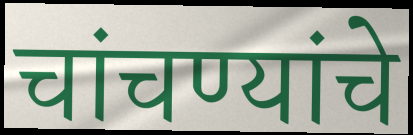
चांचण्यांचे